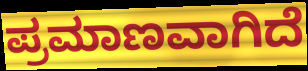
ಪ್ರಮಾಣವಾಗಿದೆ